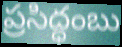
ప్రసిద్ధంబు